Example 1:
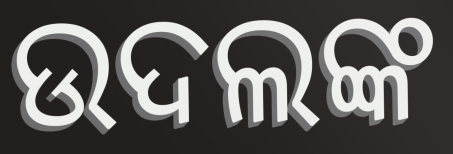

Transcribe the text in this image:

ଉଦଲଙ୍କ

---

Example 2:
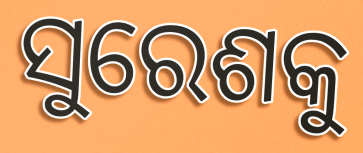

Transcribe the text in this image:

ସୁରେଶକୁ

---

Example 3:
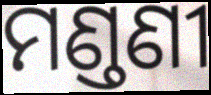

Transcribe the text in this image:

ମଣ୍ଡଣୀ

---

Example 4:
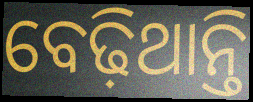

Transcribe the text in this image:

ବେଢ଼ିଥାନ୍ତି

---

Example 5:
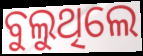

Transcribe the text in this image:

ବୁଲୁଥିଲେ